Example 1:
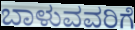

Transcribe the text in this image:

ಬಾಳುವವರಿಗೆ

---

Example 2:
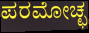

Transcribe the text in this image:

ಪರಮೋಚ್ಛ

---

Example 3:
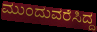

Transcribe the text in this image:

ಮುಂದುವರೆಸಿದ್ದ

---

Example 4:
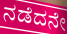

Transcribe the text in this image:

ನಡೆದನೇ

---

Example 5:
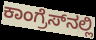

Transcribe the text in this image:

ಕಾಂಗ್ರೆಸ್‌ನಲ್ಲಿ